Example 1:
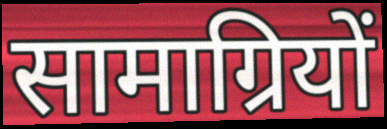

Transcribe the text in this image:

सामाग्रियों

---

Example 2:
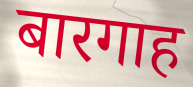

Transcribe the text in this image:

बारगाह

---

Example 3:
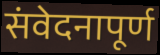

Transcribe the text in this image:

संवेदनापूर्ण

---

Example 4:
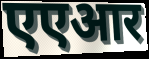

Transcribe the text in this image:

एएआर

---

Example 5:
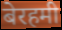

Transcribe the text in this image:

बेरहमी